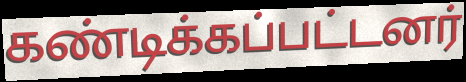
கண்டிக்கப்பட்டனர்